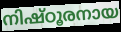
നിഷ്ഠൂരനായ